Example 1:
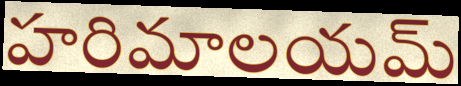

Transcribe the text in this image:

హరిమాలయమ్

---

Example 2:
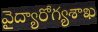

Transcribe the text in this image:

వైద్యారోగ్యశాఖ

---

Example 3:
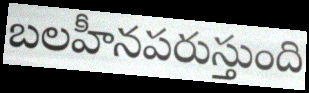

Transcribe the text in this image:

బలహీనపరుస్తుంది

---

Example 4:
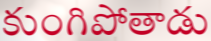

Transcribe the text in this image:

కుంగిపోతాడు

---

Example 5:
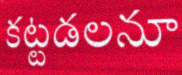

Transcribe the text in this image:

కట్టడలనూ